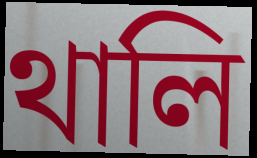
থালি